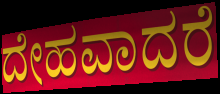
ದೇಹವಾದರೆ